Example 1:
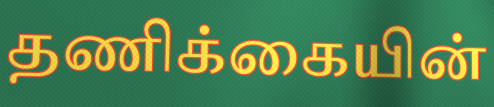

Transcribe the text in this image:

தணிக்கையின்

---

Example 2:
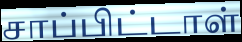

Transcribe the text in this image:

சாப்பிட்டாள்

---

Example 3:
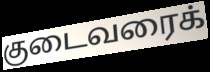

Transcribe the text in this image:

குடைவரைக்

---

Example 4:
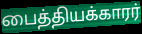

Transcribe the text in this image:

பைத்தியக்காரர்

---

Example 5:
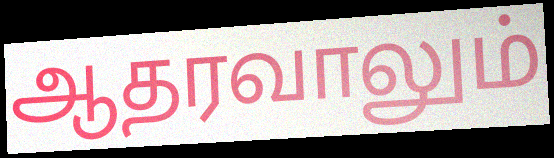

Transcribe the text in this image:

ஆதரவாலும்